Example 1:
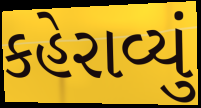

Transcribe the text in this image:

કહેરાવ્યું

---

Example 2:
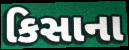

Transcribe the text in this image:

કિસાના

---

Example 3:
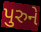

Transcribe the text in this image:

પુરુને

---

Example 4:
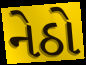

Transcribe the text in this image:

નેઠો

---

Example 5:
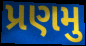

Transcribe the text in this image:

પ્રણમુ